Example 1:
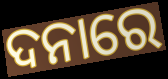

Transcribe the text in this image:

ଦନାରେ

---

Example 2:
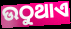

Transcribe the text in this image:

ଉଠୁଥାଏ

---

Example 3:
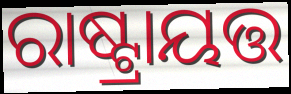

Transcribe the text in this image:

ରାଷ୍ଟ୍ରାୟତ୍ତ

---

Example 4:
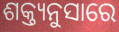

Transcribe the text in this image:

ଶକ୍ତ୍ୟନୁସାରେ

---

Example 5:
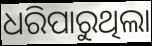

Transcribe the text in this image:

ଧରିପାରୁଥିଲା